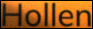
Hollen